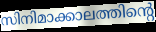
സിനിമാക്കാലത്തിന്റെ